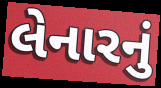
લેનારનું